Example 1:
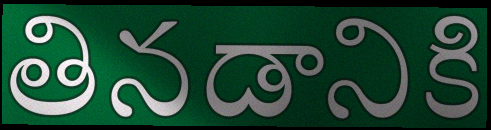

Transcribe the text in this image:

తినడానికి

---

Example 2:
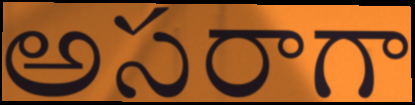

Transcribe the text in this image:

అసరాగా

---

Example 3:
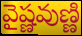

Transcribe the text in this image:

వైష్ణవుణ్ణి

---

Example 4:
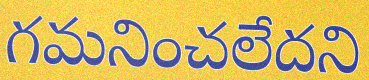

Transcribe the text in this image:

గమనించలేదని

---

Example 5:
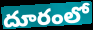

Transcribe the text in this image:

దూరంలో